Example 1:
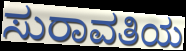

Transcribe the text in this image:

ಸುರಾವತಿಯ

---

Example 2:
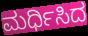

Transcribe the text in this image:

ಮರ್ಧಿಸಿದ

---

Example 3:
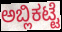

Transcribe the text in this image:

ಅಬ್ಲಿಕಟ್ಟೆ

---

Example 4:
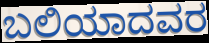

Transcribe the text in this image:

ಬಲಿಯಾದವರ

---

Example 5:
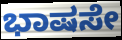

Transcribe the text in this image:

ಭಾಷಸೇ